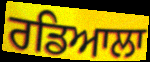
ਰਡਿਆਲਾ